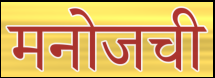
मनोजची